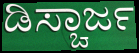
ಡಿಸ್ಚಾರ್ಜ